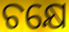
ଚକ୍ଷେ